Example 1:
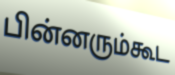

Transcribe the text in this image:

பின்னரும்கூட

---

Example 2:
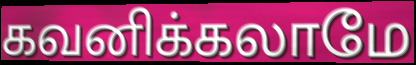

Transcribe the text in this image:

கவனிக்கலாமே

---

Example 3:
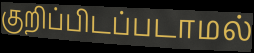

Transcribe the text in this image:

குறிப்பிடப்படாமல்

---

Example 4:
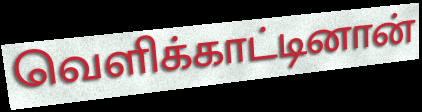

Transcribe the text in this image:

வெளிக்காட்டினான்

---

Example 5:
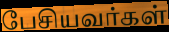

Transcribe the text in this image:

பேசியவர்கள்